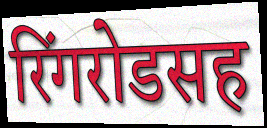
रिंगरोडसह